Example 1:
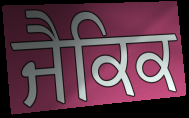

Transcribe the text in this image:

ਜੈਕਿਕ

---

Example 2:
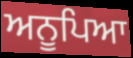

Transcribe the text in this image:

ਅਨੂਪਿਆ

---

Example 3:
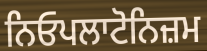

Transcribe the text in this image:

ਨਿਓਪਲਾਟੋਨਿਜ਼ਮ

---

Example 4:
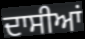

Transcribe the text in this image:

ਦਾਸੀਆਂ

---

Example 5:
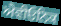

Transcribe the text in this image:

ਐਵੀਓਨਿਕ